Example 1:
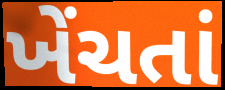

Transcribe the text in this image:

ખેંચતાં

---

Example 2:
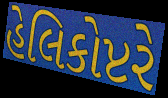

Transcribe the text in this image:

હેલિકોપ્ટરે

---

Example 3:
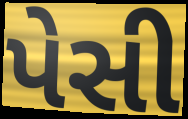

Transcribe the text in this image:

પેસી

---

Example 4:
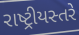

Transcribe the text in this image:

રાષ્ટ્રીયસ્તરે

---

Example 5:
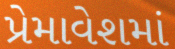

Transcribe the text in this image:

પ્રેમાવેશમાં